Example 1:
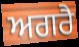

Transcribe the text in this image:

ਅਗਰੈ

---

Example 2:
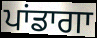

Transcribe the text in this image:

ਪਾਂਡਾਗਾ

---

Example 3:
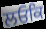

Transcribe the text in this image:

ਲਓਕਿ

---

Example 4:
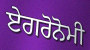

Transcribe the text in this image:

ਏਗਰੋਨੋਮੀ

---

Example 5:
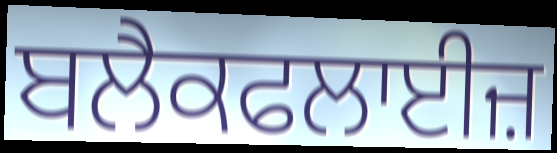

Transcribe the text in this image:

ਬਲੈਕਫਲਾਈਜ਼